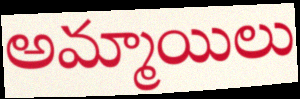
అమ్మాయిలు